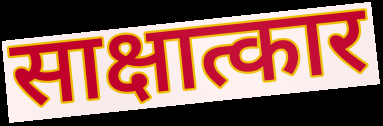
साक्षात्कार